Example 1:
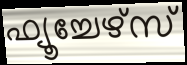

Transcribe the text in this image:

ഫ്യൂച്ചേഴ്സ്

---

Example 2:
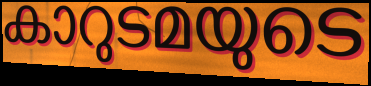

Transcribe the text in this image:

കാറുടമയുടെ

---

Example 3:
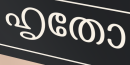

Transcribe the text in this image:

ഹൃതോ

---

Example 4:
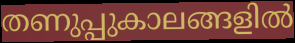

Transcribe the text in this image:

തണുപ്പുകാലങ്ങളിൽ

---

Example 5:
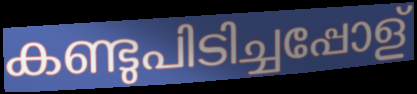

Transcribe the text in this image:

കണ്ടുപിടിച്ചപ്പോള്